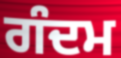
ਗੰਦਮ